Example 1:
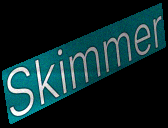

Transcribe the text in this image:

Skimmer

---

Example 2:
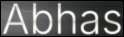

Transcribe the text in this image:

Abhas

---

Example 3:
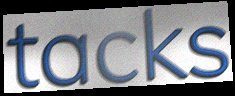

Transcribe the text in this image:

tacks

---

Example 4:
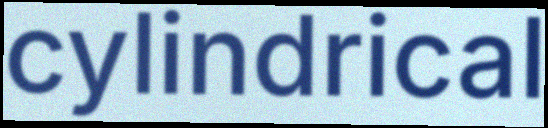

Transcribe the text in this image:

cylindrical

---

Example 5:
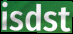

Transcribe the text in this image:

isdst